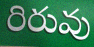
రిరువు